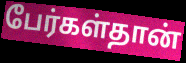
பேர்கள்தான்